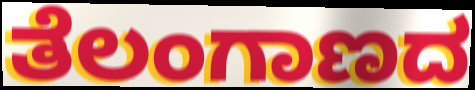
ತೆಲಂಗಾಣದ